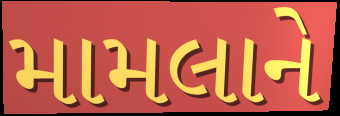
મામલાને